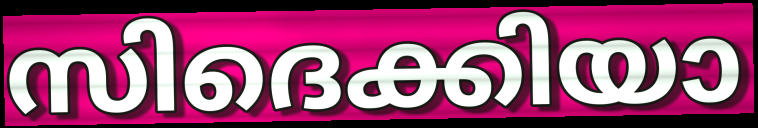
സിദെക്കിയാ